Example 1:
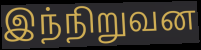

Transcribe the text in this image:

இந்நிறுவன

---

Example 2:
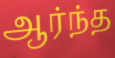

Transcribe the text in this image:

ஆர்ந்த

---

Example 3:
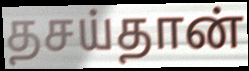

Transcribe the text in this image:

தசய்தான்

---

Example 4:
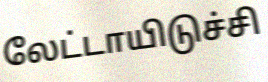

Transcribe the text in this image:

லேட்டாயிடுச்சி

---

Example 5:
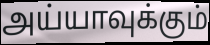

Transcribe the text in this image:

அய்யாவுக்கும்